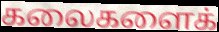
கலைகளைக்